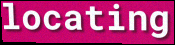
locating